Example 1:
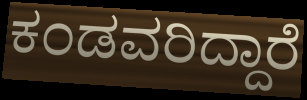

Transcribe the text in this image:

ಕಂಡವರಿದ್ದಾರೆ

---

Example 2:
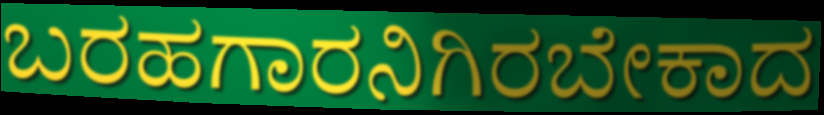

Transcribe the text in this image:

ಬರಹಗಾರನಿಗಿರಬೇಕಾದ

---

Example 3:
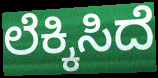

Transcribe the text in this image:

ಲೆಕ್ಕಿಸಿದೆ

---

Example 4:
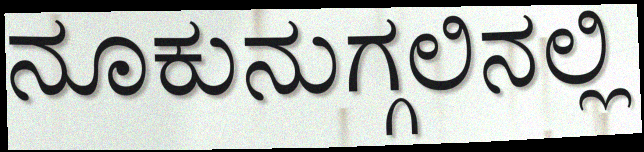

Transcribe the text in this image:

ನೂಕುನುಗ್ಗಲಿನಲ್ಲಿ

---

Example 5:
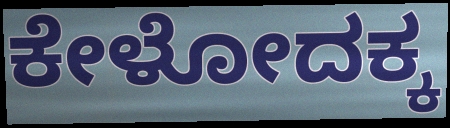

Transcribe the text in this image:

ಕೇಳೋದಕ್ಕ